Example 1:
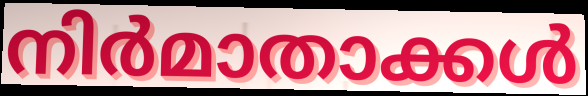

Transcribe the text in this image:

നിർമാതാക്കൾ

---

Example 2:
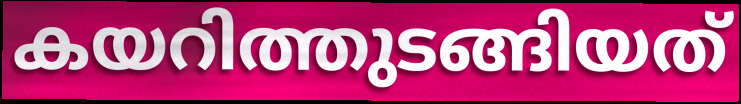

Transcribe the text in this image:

കയറിത്തുടങ്ങിയത്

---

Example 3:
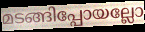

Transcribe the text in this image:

മടങ്ങിപ്പോയല്ലോ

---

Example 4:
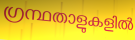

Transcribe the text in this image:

ഗ്രന്ഥതാളുകളിൽ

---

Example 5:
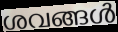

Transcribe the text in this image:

ശവങ്ങൾ